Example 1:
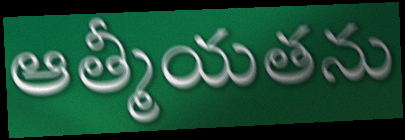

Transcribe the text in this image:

ఆత్మీయతను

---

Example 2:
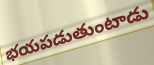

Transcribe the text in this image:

భయపడుతుంటాడు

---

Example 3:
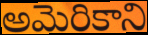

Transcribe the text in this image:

అమెరికాని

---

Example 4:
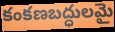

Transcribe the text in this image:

కంకణబద్ధులమై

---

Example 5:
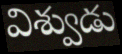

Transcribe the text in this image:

విశ్వుడు